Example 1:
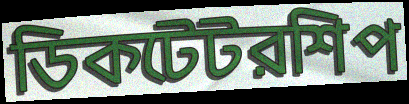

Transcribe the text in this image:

ডিকটেটরশিপ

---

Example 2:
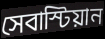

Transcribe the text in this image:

সেবাস্টিয়ান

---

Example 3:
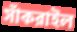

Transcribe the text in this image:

সাঁকরাইল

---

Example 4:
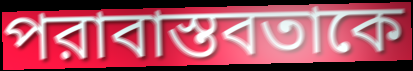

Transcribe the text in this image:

পরাবাস্তবতাকে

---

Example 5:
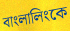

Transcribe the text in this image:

বাংলালিংকে